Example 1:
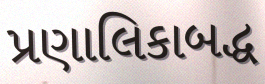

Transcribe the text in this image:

પ્રણાલિકાબદ્ધ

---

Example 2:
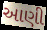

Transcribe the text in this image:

આણી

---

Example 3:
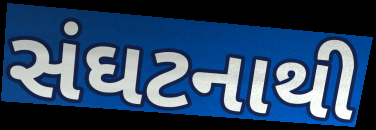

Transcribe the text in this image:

સંઘટનાથી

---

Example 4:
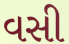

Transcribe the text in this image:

વસી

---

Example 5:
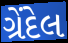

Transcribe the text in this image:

ગ્રેંદેલ